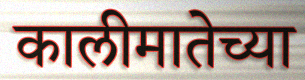
कालीमातेच्या